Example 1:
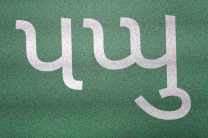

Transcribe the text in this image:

પપ્પુ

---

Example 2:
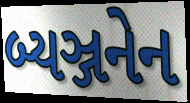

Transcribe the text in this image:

બ્યઞ્જનેન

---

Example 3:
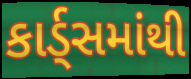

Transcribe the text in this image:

કાર્ડ્સમાંથી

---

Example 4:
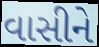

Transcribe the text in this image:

વાસીને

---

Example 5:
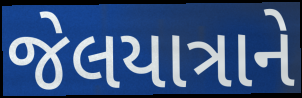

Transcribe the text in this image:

જેલયાત્રાને